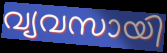
വ്യവസായി